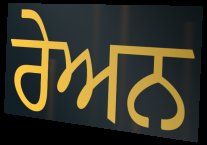
ਰੇਅਨ